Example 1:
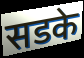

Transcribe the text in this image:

सडके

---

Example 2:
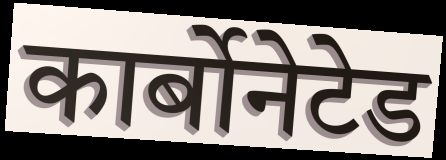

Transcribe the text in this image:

कार्बोनेटेड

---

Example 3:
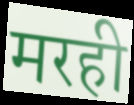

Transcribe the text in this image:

मरही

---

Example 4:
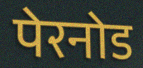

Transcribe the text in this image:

पेरनोड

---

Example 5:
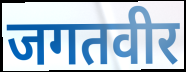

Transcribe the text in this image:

जगतवीर